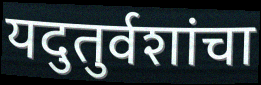
यदुतुर्वशांचा